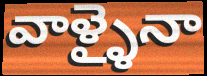
వాళ్ళైనా